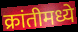
क्रांतीमध्ये